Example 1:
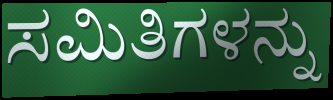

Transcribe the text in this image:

ಸಮಿತಿಗಳನ್ನು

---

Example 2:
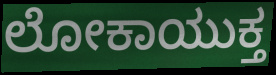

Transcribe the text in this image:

ಲೋಕಾಯುಕ್ತ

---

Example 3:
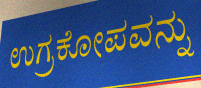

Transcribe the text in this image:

ಉಗ್ರಕೋಪವನ್ನು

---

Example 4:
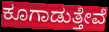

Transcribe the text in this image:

ಕೂಗಾಡುತ್ತೇವೆ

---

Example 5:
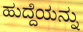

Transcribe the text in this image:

ಹುದ್ದೆಯನ್ನು